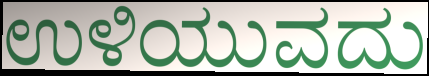
ಉಳಿಯುವದು